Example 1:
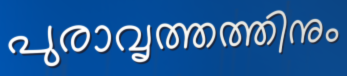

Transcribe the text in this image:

പുരാവൃത്തത്തിനും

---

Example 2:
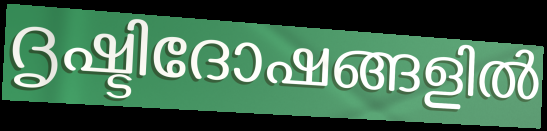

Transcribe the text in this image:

ദൃഷ്ടിദോഷങ്ങളിൽ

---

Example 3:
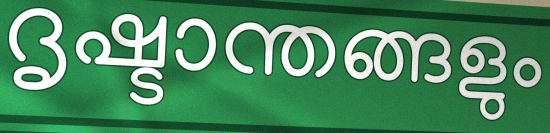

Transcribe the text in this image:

ദൃഷ്ടാന്തങ്ങളും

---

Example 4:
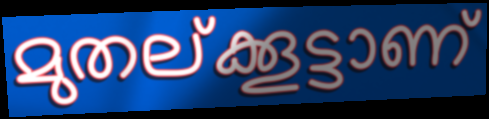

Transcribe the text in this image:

മുതല്ക്കൂട്ടാണ്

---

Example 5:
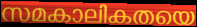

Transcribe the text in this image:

സമകാലികതയെ